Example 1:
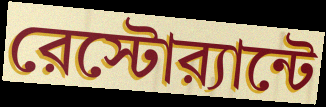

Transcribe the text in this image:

রেস্টোর‍্যান্টে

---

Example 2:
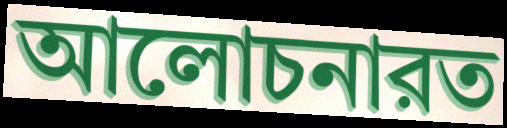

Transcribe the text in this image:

আলোচনারত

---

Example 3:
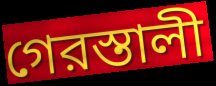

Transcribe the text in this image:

গেরস্তালী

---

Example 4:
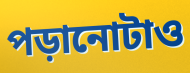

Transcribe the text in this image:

পড়ানোটাও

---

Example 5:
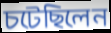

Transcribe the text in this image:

চটেছিলেন